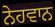
ਨੇਹਵਾਨ